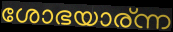
ശോഭയാര്ന്ന